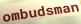
ombudsman